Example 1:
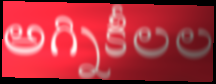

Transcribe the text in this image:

అగ్నికీలల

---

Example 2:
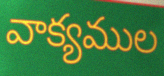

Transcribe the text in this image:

వాక్యముల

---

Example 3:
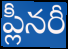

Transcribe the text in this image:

ప్లీనరీ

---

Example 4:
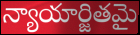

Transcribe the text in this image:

న్యాయార్జితమై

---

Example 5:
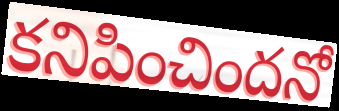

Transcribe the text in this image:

కనిపించిందనో